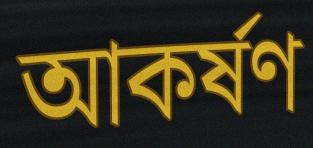
আকর্ষণ